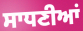
ਸਾਧਣੀਆਂ